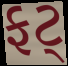
ફટ્